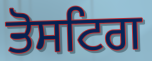
ਤੋਸਟਿਗ